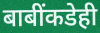
बाबींकडेही